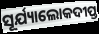
ସୂର୍ଯ୍ୟାଲୋକଦୀପ୍ତ